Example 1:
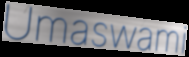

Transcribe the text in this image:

Umaswami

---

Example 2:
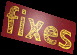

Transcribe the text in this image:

fixes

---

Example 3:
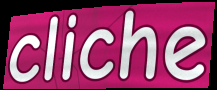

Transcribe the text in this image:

cliche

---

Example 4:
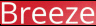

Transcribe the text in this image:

Breeze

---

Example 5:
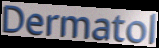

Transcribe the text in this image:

Dermatol